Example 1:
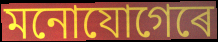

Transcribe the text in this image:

মনোযোগেৰে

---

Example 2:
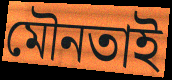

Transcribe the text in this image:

মৌনতাই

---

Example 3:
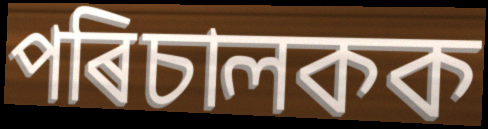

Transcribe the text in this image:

পৰিচালকক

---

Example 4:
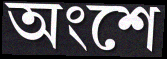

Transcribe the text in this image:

অংশে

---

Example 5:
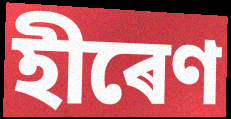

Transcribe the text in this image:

হীৰেণ